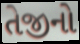
તેજીનો